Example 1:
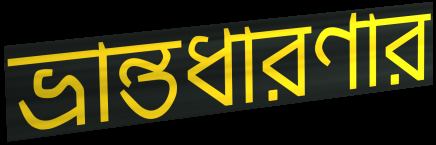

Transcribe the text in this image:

ভ্রান্তধারণার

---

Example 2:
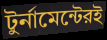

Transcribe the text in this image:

টুর্নামেন্টেরই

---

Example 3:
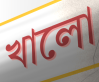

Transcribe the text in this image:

খালো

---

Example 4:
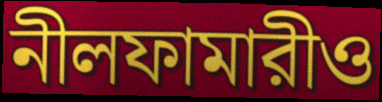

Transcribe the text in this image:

নীলফামারীও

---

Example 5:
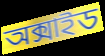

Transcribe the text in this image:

অক্সাইড